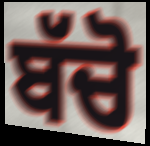
ਬੱਚੋ